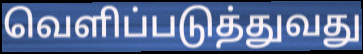
வெளிப்படுத்துவது